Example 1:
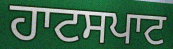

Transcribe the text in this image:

ਹਾਟਸਪਾਟ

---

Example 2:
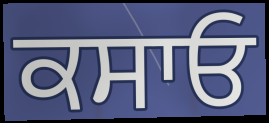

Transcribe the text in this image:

ਕਸਾਓ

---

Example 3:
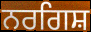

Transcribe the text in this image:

ਨਰਗਿਸ਼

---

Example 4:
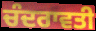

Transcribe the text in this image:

ਚੰਦਰਾਵਤੀ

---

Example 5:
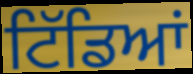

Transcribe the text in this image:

ਟਿੱਡਿਆਂ